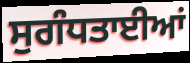
ਸੁਗੰਧਤਾਈਆਂ